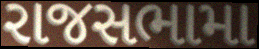
રાજસભામા